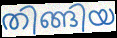
തിങ്ങിയ